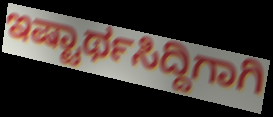
ಇಷ್ಟಾರ್ಥಸಿದ್ದಿಗಾಗಿ